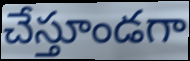
చేస్తూండగా